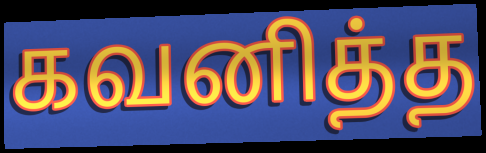
கவனித்த